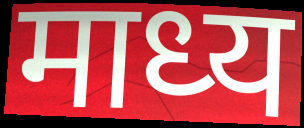
माध्‍य